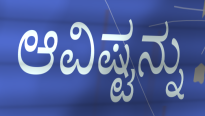
ಆವಿಷ್ಟನ್ನು